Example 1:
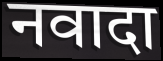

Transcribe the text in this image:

नवादा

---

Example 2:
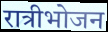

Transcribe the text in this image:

रात्रीभोजन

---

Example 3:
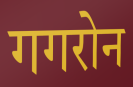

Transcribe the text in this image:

गगरोन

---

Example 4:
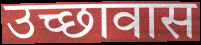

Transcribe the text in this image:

उच्छावास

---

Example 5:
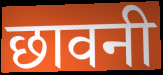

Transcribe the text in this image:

छावनी